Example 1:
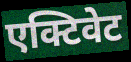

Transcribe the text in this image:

एक्टिवेट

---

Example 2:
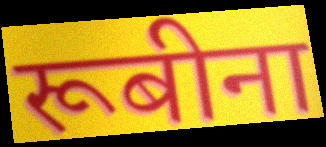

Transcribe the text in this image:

रूबीना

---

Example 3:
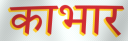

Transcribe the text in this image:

काभार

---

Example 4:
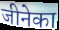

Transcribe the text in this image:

जीनेका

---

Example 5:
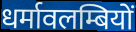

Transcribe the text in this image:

धर्मावलम्बियों